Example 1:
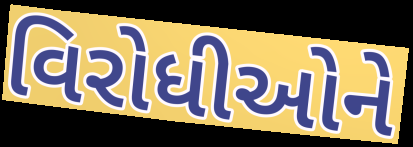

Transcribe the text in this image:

વિરોધીઓને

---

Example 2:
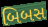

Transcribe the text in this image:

બિબસ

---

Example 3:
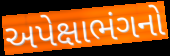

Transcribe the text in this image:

અપેક્ષાભંગનો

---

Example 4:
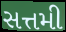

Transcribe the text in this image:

સત્તમી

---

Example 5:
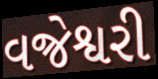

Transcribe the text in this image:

વજ્રેશ્વરી